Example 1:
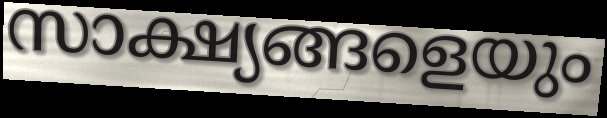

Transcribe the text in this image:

സാക്ഷ്യങ്ങളെയും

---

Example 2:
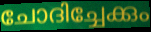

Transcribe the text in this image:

ചോദിച്ചേക്കും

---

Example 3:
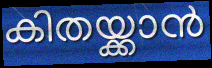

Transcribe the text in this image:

കിതയ്ക്കാൻ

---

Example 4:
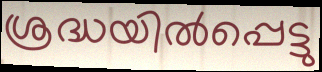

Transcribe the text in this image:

ശ്രദ്ധയിൽപ്പെട്ടു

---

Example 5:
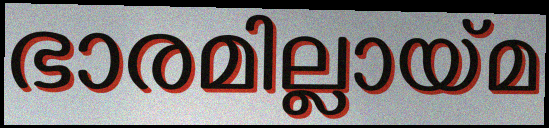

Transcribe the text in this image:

ഭാരമില്ലായ്മ